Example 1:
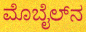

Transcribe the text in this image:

ಮೊಬೈಲ್‌ನ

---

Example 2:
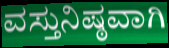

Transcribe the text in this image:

ವಸ್ತುನಿಷ್ಠವಾಗಿ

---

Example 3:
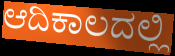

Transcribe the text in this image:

ಆದಿಕಾಲದಲ್ಲಿ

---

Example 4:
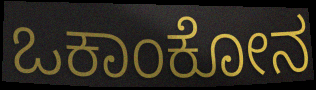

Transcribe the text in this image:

ಒಕಾಂಕೋನ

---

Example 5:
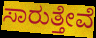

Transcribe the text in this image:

ಸಾರುತ್ತೇವೆ